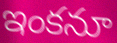
ఇంకనూ